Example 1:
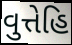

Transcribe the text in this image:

વુત્તેહિ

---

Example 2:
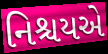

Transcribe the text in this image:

નિશ્ચયએ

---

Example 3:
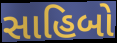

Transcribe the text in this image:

સાહિબો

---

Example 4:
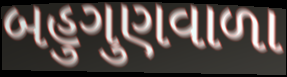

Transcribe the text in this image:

બહુગુણવાળા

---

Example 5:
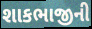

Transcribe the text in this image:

શાકભાજીની